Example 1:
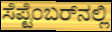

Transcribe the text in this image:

ಸೆಪ್ಟೆಂಬರ್‌ನಲ್ಲಿ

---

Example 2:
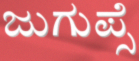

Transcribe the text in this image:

ಜುಗುಪ್ಸೆ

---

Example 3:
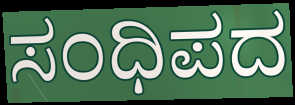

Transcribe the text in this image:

ಸಂಧಿಪದ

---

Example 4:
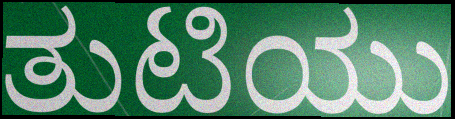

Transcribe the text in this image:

ತುಟಿಯು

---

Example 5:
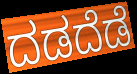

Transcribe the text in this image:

ದಡದೆಡೆ